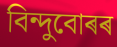
বিন্দুবোৰৰ